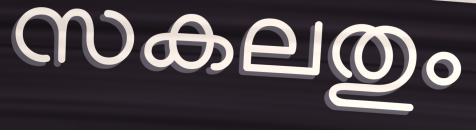
സകലതും